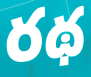
రథ